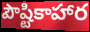
పౌష్టికాహార